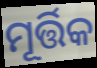
ମୂର୍ତ୍ତିକ